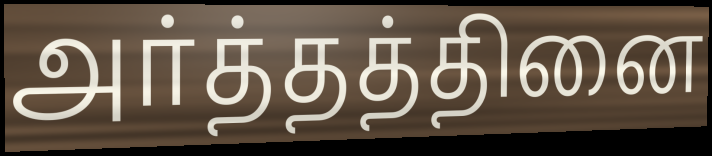
அர்த்தத்தினை